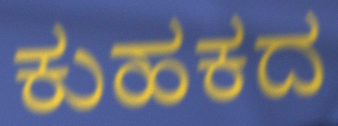
ಕುಹಕದ